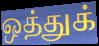
ஒத்துக்